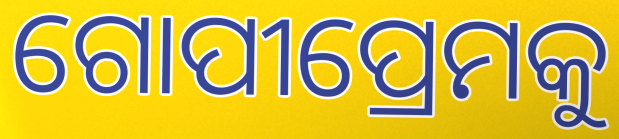
ଗୋପୀପ୍ରେମକୁ